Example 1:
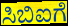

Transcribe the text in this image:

ಸಿಬಿಐಗೆ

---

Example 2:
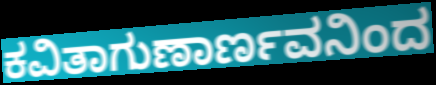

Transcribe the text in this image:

ಕವಿತಾಗುಣಾರ್ಣವನಿಂದ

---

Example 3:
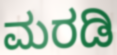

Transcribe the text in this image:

ಮರಡಿ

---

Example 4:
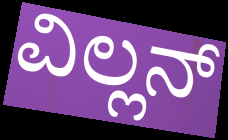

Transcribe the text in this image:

ವಿಲ್ಲನ್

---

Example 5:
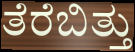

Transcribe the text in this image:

ತೆರೆಬಿತ್ತು